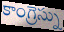
కాంగ్రెస్ను